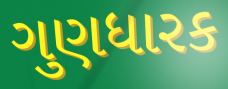
ગુણધારક